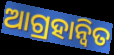
ଆଗ୍ରହାନ୍ୱିତ